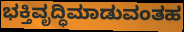
ಭಕ್ತಿವೃದ್ಧಿಮಾಡುವಂತಹ